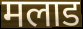
मलाड